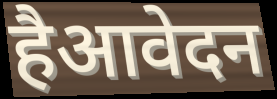
हैआवेदन